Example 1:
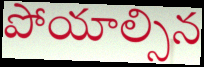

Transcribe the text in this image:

పోయాల్సిన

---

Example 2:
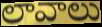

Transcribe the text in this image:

లావాలు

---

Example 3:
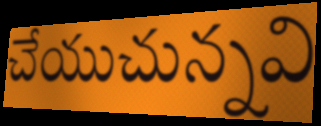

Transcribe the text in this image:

చేయుచున్నవి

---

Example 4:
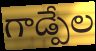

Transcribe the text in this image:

గాడ్పేల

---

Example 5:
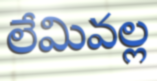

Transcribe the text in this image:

లేమివల్ల